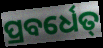
ପ୍ରବର୍ଧେତ୍